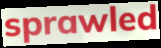
sprawled